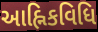
આહ્નિકવિધિ